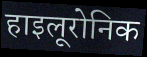
हाइलूरोनिक